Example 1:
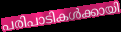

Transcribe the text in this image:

പരിപാടികൾക്കായി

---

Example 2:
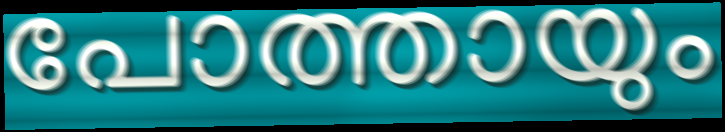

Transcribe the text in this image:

പോത്തായും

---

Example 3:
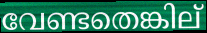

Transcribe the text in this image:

വേണ്ടതെങ്കില്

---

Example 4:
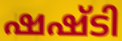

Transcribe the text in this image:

ഷഷ്ടി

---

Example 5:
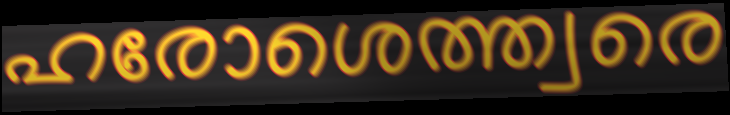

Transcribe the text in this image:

ഹരോശെത്ത്വരെ